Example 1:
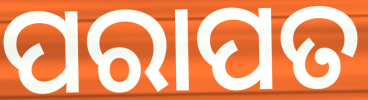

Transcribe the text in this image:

ପରାପତ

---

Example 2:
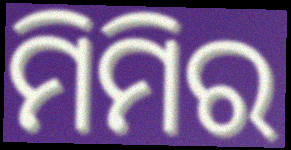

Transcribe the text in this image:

ମିମିର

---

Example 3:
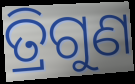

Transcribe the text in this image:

ତ୍ରିଗୁଣ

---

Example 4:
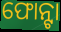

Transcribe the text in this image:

ଫୋନ୍ଟା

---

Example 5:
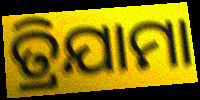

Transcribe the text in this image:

ତ୍ରିଯାମା